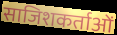
साजिशकर्ताओं